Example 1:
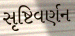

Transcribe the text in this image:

સૃષ્ટિવર્ણન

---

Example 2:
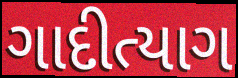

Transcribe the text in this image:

ગાદીત્યાગ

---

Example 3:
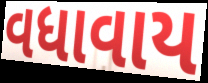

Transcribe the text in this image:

વધાવાય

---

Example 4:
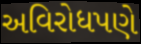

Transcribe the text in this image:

અવિરોધપણે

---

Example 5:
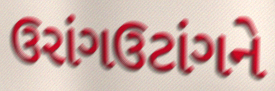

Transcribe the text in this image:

ઉરાંગઉટાંગને